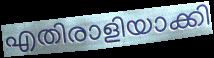
എതിരാളിയാക്കി